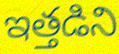
ఇత్తడిని